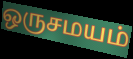
ஒருசமயம்